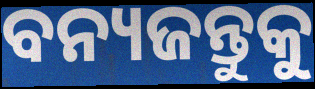
ବନ୍ୟଜନ୍ତୁକୁ